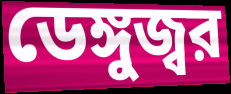
ডেঙ্গুজ্বর